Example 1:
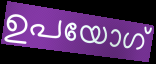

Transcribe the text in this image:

ഉപയോഗ്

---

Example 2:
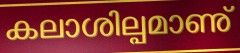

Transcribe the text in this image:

കലാശില്പമാണു്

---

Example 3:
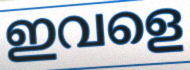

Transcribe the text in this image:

ഇവളെ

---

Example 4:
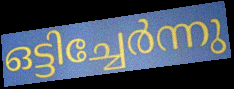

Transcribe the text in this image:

ഒട്ടിച്ചേർന്നു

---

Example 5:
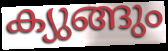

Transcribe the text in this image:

ക്യുങ്ങും